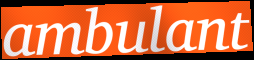
ambulant